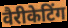
वैरीकेटिंग